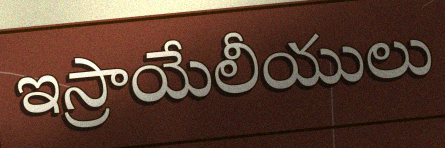
ఇస్రాయేలీయులు